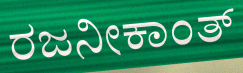
ರಜನೀಕಾಂತ್